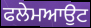
ਫਲੇਮਆਉਟ